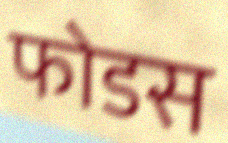
फोडस